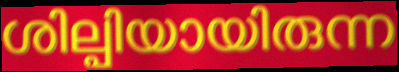
ശില്പിയായിരുന്ന